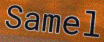
Samel